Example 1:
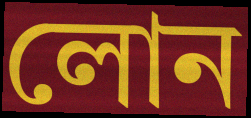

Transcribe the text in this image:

লোন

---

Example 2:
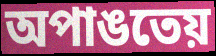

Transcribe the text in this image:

অপাঙতেয়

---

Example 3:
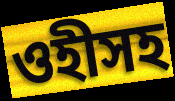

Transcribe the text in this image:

ওহীসহ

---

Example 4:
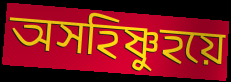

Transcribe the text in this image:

অসহিষ্ণুহয়ে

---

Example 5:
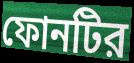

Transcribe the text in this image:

ফোনটির